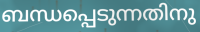
ബന്ധപ്പെടുന്നതിനു